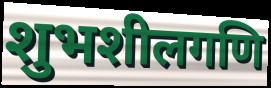
शुभशीलगणि